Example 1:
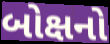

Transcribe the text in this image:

બોક્ષનો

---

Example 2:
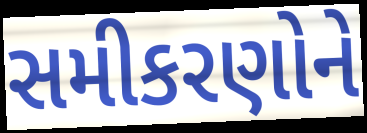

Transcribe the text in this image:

સમીકરણોને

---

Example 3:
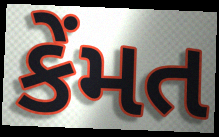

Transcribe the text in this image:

કેંમત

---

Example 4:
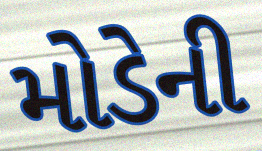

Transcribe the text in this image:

મોડેની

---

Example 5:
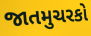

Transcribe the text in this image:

જાતમુચરકો